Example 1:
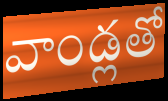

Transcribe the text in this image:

వాండ్లతో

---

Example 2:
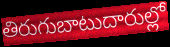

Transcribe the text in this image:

తిరుగుబాటుదారుల్లో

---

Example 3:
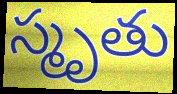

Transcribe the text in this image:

స్మృతు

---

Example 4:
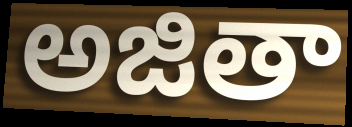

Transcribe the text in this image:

అజితా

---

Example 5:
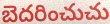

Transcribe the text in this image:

బెదరించుచు